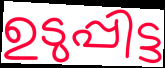
ഉടുപ്പിട്ട